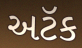
અટૅક